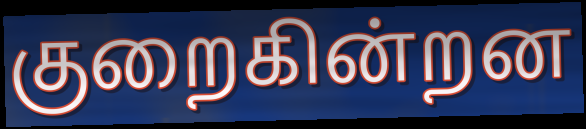
குறைகின்றன